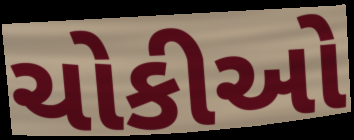
ચોકીઓ